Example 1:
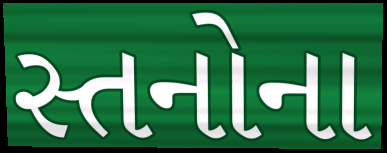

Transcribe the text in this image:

સ્તનોના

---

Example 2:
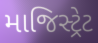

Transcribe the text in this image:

માજિસ્ટ્રેટ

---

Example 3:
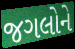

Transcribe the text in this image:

જગલોને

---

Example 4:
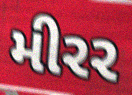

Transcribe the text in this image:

મીરર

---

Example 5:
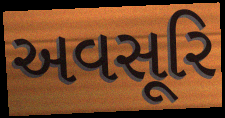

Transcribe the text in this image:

અવસૂરિ